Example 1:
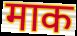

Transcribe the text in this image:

माक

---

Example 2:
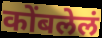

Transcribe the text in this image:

कोंबलेलं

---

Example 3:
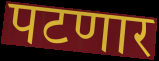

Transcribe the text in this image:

पटणार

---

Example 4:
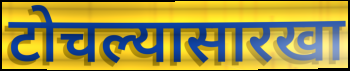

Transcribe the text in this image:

टोचल्यासारखा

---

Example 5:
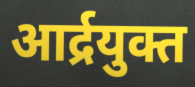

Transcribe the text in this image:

आर्द्रयुक्त